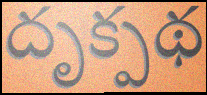
దృక్పథ